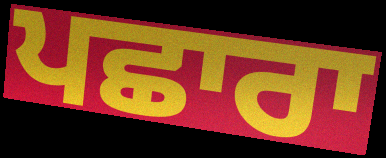
ਪਛਾਰਾ